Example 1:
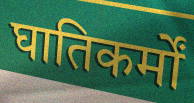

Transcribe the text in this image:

घातिकर्मों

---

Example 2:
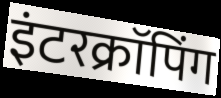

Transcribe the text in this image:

इंटरक्रॉपिंग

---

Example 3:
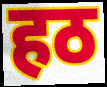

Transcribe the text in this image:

हठ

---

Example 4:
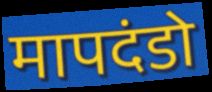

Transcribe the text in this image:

मापदंडो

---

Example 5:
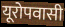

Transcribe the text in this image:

यूरोपवासी